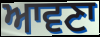
ਆਵਣਾ